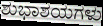
ಶುಭಾಶಯಗಳು